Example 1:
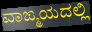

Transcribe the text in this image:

ವಾಙ್ಮಯದಲ್ಲಿ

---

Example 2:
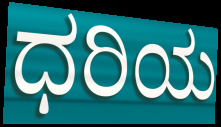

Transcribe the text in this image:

ಧರಿಯ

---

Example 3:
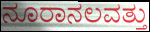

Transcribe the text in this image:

ನೂರಾನಲವತ್ತು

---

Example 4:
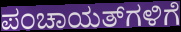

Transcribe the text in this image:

ಪಂಚಾಯತ್‌ಗಳಿಗೆ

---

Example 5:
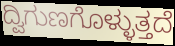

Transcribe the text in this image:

ದ್ವಿಗುಣಗೊಳ್ಳುತ್ತದೆ